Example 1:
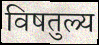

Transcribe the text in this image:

विषतुल्य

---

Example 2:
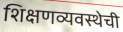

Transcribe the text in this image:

शिक्षणव्यवस्थेची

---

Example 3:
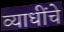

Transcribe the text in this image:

व्याधींचे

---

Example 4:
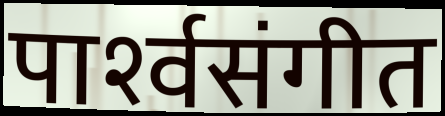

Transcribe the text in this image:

पार्श्वसंगीत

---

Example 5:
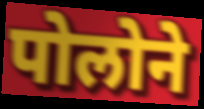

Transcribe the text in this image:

पोलोने